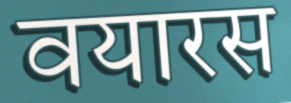
वयारस